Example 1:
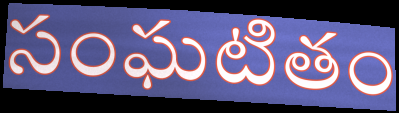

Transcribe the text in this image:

సంఘటితం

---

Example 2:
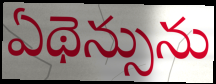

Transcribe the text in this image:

ఏథెన్సును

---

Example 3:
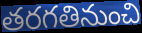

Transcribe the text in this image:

తరగతినుంచి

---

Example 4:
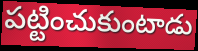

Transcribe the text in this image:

పట్టించుకుంటాడు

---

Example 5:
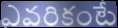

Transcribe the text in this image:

ఎవరికంటే